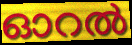
ഓറൽ